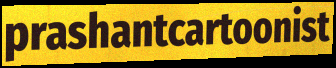
prashantcartoonist